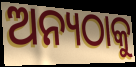
ଅନ୍ୟଠାକୁ